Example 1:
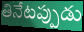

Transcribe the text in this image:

తినేటప్పుడు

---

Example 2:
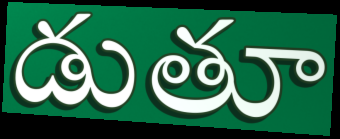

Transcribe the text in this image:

డుతూ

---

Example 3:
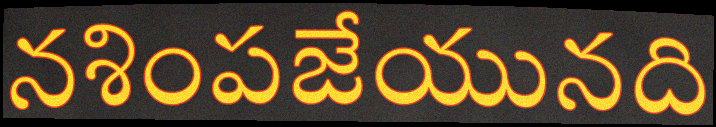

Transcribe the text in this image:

నశింపజేయునది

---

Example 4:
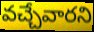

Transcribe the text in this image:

వచ్చేవారని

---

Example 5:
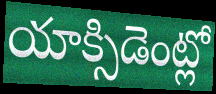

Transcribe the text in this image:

యాక్సిడెంట్లో